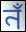
নঁ